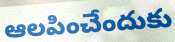
ఆలపించేందుకు